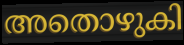
അതൊഴുകി